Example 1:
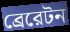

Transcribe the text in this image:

ব্রেরেটন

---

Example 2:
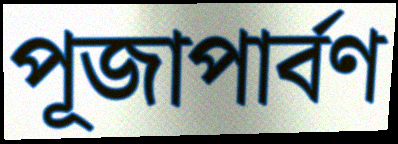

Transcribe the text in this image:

পূজাপার্বণ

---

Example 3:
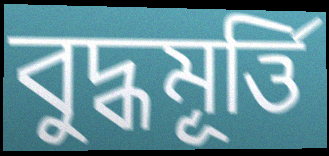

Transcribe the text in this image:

বুদ্ধমূর্ত্তি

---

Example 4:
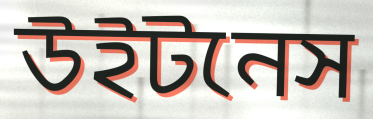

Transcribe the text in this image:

উইটনেস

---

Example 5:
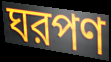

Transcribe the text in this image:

ঘরপণ